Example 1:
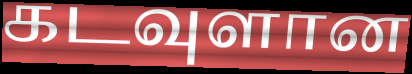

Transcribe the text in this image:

கடவுளான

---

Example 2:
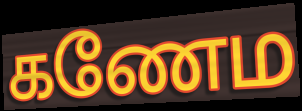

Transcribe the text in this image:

கணேம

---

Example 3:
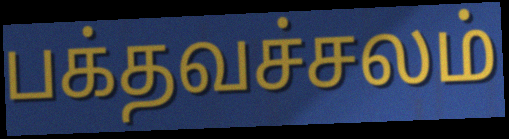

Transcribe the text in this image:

பக்தவச்சலம்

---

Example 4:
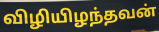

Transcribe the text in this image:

விழியிழந்தவன்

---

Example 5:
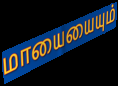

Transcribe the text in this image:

மாயையையும்